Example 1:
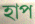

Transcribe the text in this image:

হাপ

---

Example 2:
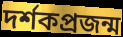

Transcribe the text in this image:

দর্শকপ্রজন্ম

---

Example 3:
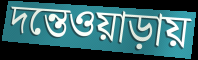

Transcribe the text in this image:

দন্তেওয়াড়ায়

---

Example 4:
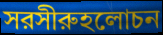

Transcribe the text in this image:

সরসীরুহলোচন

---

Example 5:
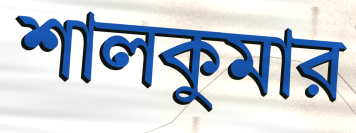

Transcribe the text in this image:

শালকুমার